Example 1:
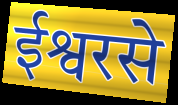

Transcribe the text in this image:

ईश्वरसे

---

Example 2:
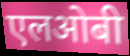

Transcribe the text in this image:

एलओबी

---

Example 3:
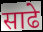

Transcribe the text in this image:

साढे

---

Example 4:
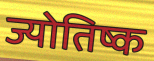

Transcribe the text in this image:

ज्योतिष्क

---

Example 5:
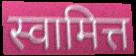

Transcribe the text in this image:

स्वामित्त